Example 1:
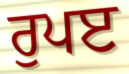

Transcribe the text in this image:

ਰੁਪੲ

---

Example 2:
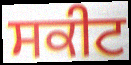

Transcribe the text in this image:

ਸਕੀਟ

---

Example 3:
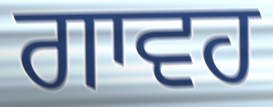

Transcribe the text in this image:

ਗਾਵਹ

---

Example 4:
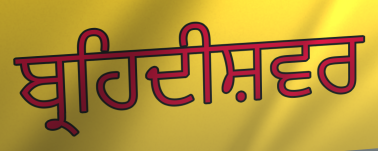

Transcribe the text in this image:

ਬ੍ਰਹਿਦੀਸ਼ਵਰ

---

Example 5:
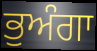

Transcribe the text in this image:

ਭੁਅੰਗਾ